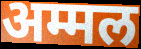
अम्मल